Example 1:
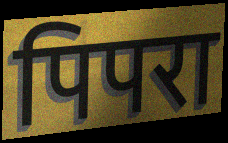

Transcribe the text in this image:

पिपरा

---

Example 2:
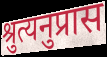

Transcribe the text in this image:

श्रुत्यनुप्रास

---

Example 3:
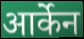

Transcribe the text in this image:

आर्केन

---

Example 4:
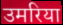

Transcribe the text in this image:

उमरिया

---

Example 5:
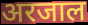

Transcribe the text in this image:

अरजाल